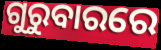
ଗୁରୁବାରରେ